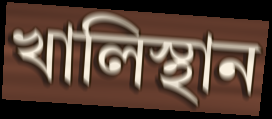
খালিস্থান